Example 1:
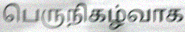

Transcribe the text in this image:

பெருநிகழ்வாக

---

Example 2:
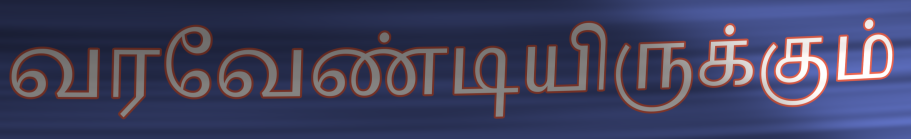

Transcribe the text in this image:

வரவேண்டியிருக்கும்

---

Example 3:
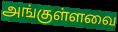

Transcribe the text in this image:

அங்குள்ளவை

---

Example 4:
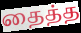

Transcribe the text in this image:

தைத்த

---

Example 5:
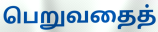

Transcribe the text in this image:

பெறுவதைத்